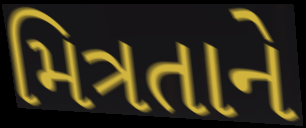
મિત્રતાને